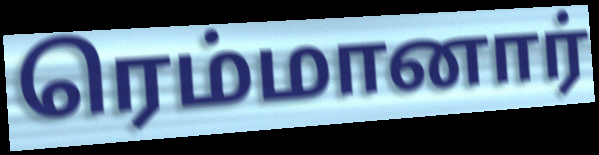
ரெம்மானார்